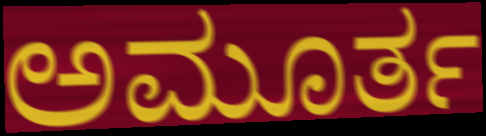
ಅಮೂರ್ತ